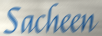
Sacheen